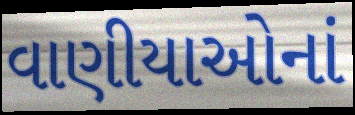
વાણીયાઓનાં